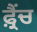
ਫ਼੍ਰੈਂਚ